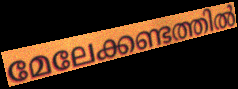
മേലേക്കണ്ടത്തിൽ